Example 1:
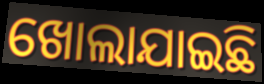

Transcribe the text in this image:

ଖୋଲାଯାଇଛି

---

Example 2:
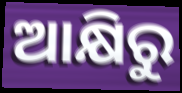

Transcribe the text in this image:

ଆକ୍ଷିରୁ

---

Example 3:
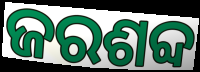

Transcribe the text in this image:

ଜରଶବ୍ଦ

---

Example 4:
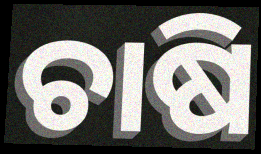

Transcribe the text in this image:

ଚାଷି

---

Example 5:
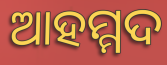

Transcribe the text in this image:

ଆହମ୍ମଦ